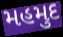
મહમુદ